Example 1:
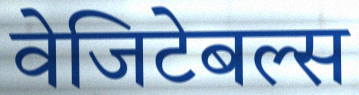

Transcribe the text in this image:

वेजिटेबल्स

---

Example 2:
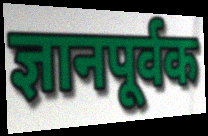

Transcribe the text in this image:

ज्ञानपूर्वक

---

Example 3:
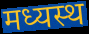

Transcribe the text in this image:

मध्यस्थ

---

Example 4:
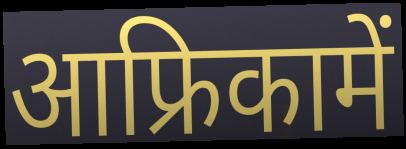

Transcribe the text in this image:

आफ्रिकामें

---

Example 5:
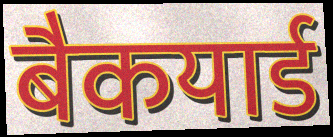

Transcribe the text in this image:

बैकयार्ड